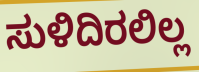
ಸುಳಿದಿರಲಿಲ್ಲ